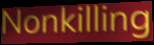
Nonkilling